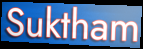
Suktham